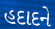
હદાદને